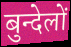
बुन्देलों